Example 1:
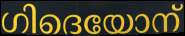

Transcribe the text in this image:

ഗിദെയോന്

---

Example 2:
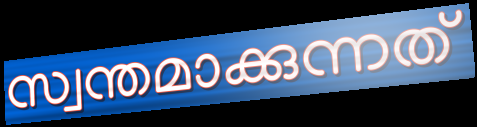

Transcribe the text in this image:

സ്വന്തമാക്കുന്നത്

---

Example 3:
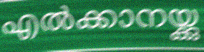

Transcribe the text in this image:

എൽക്കാനയ്ക്കു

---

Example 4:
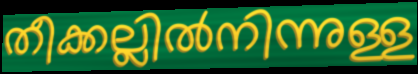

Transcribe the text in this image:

തീക്കല്ലിൽനിന്നുള്ള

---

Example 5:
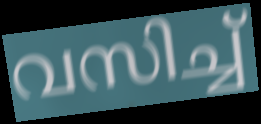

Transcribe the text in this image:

വസിച്ച്